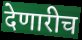
देणारीच